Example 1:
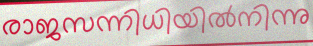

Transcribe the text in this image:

രാജസന്നിധിയിൽനിന്നു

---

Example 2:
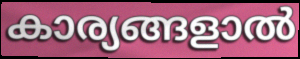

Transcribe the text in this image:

കാര്യങ്ങളാൽ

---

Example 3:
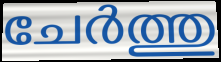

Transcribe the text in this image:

ചേർത്തു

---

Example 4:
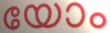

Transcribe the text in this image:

യോം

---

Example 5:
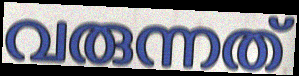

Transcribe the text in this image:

വരുന്നത്